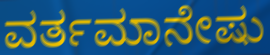
ವರ್ತಮಾನೇಷು